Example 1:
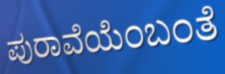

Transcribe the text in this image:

ಪುರಾವೆಯೆಂಬಂತೆ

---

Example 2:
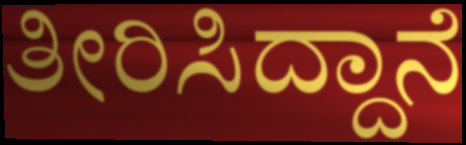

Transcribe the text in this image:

ತೀರಿಸಿದ್ದಾನೆ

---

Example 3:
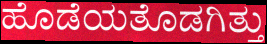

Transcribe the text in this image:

ಹೊಡೆಯತೊಡಗಿತ್ತು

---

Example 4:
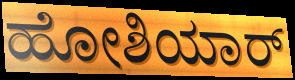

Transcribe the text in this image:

ಹೋಶಿಯಾರ್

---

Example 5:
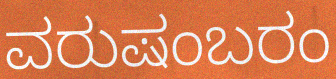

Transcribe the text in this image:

ವರುಷಂಬರಂ